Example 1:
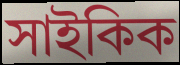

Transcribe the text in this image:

সাইকিক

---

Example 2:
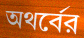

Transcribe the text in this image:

অথর্বের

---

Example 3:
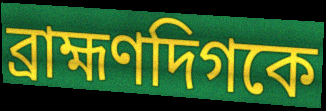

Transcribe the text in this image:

ব্রাহ্মণদিগকে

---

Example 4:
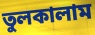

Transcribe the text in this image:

তুলকালাম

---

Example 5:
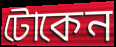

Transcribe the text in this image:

টোকেন